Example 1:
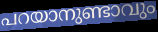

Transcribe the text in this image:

പറയാനുണ്ടാവും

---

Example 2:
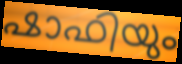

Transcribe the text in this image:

ഷാഫിയും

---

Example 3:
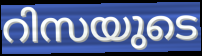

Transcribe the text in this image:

റിസയുടെ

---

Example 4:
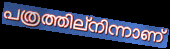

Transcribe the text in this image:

പത്രത്തില്നിന്നാണ്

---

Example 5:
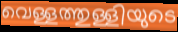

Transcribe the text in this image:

വെള്ളത്തുള്ളിയുടെ